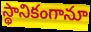
స్థానికంగానూ